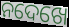
ନଦେଖେ